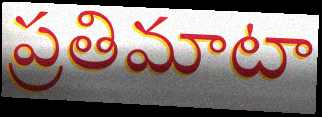
ప్రతిమాటా